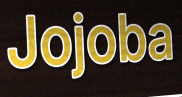
Jojoba